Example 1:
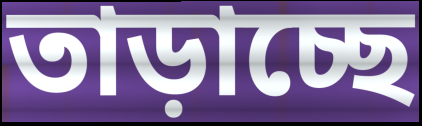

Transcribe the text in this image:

তাড়াচ্ছে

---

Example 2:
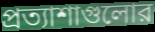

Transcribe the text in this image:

প্রত্যাশাগুলোর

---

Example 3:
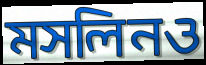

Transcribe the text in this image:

মসলিনও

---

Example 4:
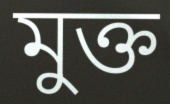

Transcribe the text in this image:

মুক্ত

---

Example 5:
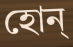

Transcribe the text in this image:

হোন্